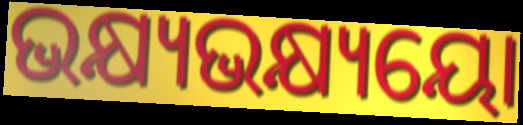
ଭକ୍ଷ୍ୟଭକ୍ଷ୍ୟୟୋ